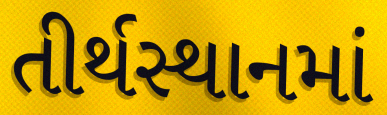
તીર્થસ્થાનમાં